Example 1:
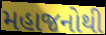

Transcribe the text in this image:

મહાજનોથી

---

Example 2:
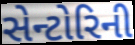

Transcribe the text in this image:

સેન્ટોરિની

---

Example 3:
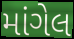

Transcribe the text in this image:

માંગેલ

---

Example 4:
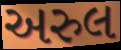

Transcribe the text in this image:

અરુલ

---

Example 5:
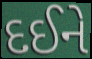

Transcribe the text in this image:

દઈને